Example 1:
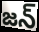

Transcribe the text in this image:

జన్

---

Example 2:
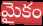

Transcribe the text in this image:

మైకం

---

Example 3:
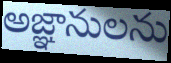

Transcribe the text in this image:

అజ్ఞానులను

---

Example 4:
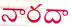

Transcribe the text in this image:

నారదా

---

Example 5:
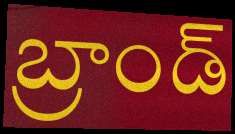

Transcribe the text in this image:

బ్రాండ్